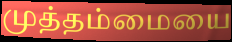
முத்தம்மையை